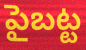
పైబట్ట